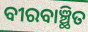
ବୀରବାଞ୍ଛିତ